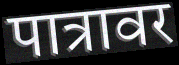
पात्रावर